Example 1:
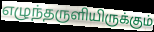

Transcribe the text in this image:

எழுந்தருளியிருக்கும்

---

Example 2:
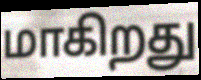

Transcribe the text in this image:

மாகிறது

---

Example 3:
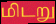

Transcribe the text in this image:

மிடறு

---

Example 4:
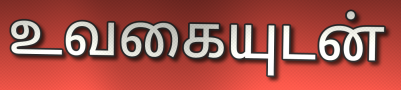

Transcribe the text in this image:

உவகையுடன்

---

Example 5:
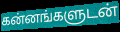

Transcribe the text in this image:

கன்னங்களுடன்